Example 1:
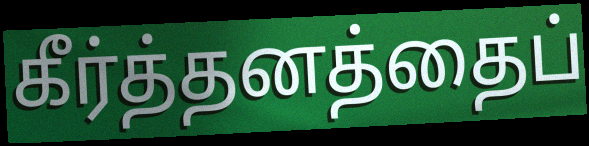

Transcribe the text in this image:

கீர்த்தனத்தைப்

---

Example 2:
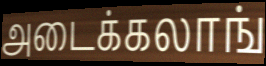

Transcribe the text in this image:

அடைக்கலாங்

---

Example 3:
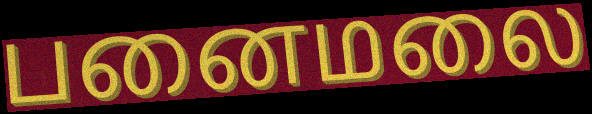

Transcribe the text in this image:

பனைமலை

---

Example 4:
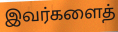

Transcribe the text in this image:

இவர்களைத்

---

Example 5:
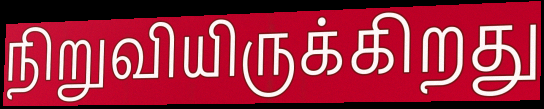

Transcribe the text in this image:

நிறுவியிருக்கிறது